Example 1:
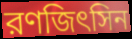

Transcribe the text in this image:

রণজিৎসিন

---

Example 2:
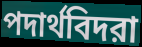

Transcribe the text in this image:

পদার্থবিদরা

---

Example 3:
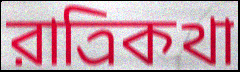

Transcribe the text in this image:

রাত্রিকথা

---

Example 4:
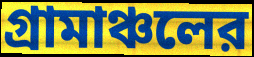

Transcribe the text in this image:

গ্রামাঞ্চলের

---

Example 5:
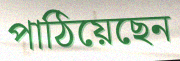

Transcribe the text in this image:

পাঠিয়েছেন